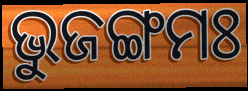
ଭୁଜଙ୍ଗମଃ